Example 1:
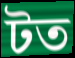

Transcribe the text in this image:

টত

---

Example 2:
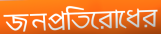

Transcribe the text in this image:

জনপ্রতিরোধের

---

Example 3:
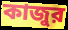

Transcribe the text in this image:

কাজুর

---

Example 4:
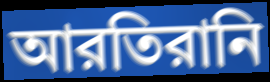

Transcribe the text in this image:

আরতিরানি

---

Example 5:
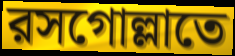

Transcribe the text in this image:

রসগোল্লাতে